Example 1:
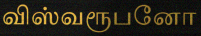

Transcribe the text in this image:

விஸ்வரூபனோ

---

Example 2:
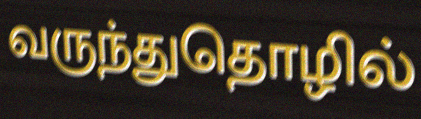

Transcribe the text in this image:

வருந்துதொழில்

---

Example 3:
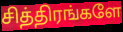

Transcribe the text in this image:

சித்திரங்களே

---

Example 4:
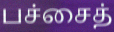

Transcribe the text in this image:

பச்சைத்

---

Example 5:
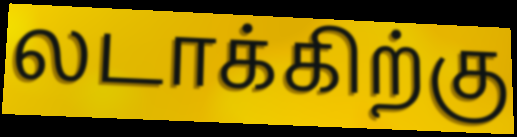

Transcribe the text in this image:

லடாக்கிற்கு